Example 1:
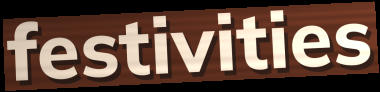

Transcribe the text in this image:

festivities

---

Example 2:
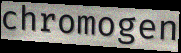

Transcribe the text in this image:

chromogen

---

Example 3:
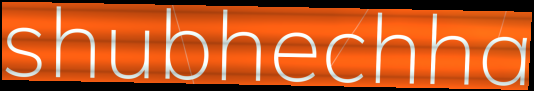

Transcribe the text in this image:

shubhechha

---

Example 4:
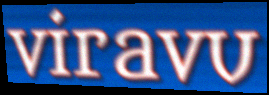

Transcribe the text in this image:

viravu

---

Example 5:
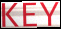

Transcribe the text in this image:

KEY